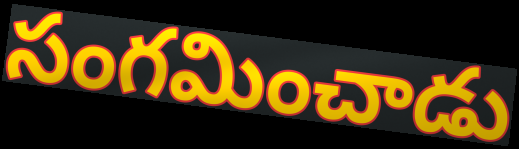
సంగమించాడు